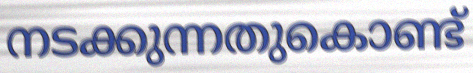
നടക്കുന്നതുകൊണ്ട്